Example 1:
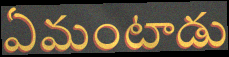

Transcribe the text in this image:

ఏమంటాడు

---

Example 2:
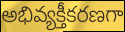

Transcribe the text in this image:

అభివ్యక్తీకరణగా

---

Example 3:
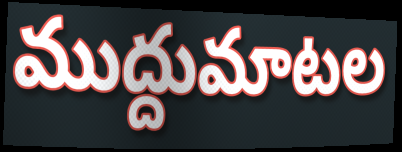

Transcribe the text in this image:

ముద్దుమాటల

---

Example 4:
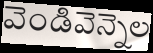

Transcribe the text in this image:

వెండివెన్నెల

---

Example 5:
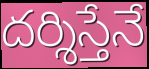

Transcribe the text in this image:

దర్శిస్తేనే